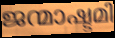
ജന്മാഷ്ടമി